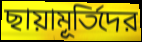
ছায়ামূর্তিদের